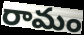
రామం